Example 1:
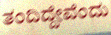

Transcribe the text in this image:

ತಂದಿದ್ದೇವೆಂದು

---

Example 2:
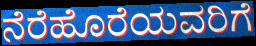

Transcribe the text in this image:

ನೆರೆಹೊರೆಯವರಿಗೆ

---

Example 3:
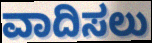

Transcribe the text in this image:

ವಾದಿಸಲು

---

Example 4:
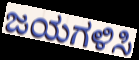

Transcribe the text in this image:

ಜಯಗಳಿಸಿ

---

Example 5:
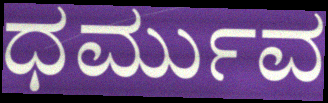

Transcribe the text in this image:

ಧರ್ಮುವ